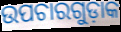
ଉପଚାରଗୁଡ଼ାକ